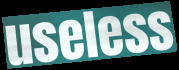
useless